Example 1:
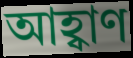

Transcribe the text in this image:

আহ্বাণ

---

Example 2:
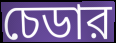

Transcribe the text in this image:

চেডার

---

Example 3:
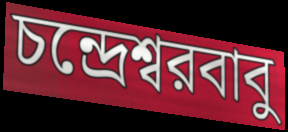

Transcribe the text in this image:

চন্দ্রেশ্বরবাবু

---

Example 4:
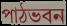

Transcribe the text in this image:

পাঠভবন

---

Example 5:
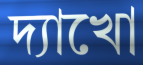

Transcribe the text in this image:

দ্যাখো